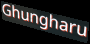
Ghungharu